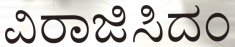
ವಿರಾಜಿಸಿದಂ